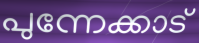
പുന്നേക്കാട്